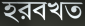
হরবখত